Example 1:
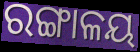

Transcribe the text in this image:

ରଙ୍ଗାଳୟ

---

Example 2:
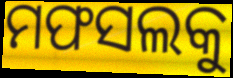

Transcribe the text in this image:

ମଫସଲକୁ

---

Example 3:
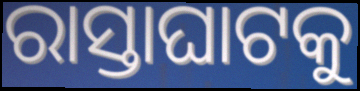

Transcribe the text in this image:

ରାସ୍ତାଘାଟକୁ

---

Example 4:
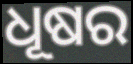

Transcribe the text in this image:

ଧୂଷର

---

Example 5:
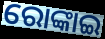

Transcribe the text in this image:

ରୋଙ୍କାଇ